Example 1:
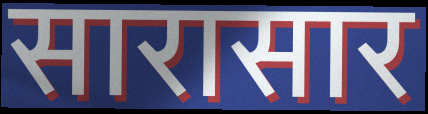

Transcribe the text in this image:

सारासार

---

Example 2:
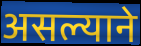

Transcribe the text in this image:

असल्याने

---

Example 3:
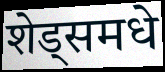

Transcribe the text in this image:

शेड्समधे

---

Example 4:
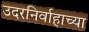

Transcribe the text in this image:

उदरनिर्वाहाच्या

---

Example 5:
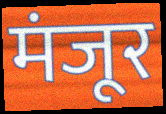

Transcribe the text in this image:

मंजूर